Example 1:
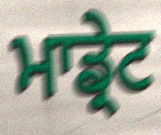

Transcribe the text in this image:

ਮਾਡ੍ਰੇਟ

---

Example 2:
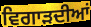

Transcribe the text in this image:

ਵਿਗਾੜਦੀਆਂ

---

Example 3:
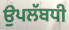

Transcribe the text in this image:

ਉਪਲੱਬਧੀ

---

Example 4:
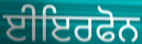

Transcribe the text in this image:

ਈਇਰਫੋਨ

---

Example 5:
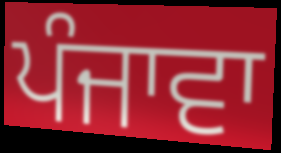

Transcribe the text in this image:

ਪੰਜਾਵਾ